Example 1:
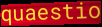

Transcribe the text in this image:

quaestio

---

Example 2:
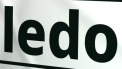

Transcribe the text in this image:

ledo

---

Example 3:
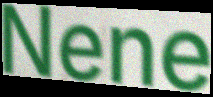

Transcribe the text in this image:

Nene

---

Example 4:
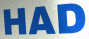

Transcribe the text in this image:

HAD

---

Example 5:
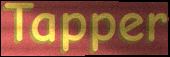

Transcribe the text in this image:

Tapper